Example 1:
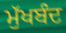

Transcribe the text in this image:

ਮੁੱਖਬੰਦ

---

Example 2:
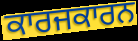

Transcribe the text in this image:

ਕਾਰਜਕਾਰਨ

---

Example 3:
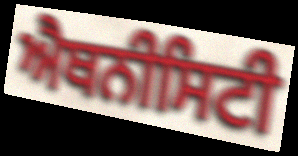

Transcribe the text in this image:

ਐਥਨੀਸਿਟੀ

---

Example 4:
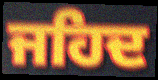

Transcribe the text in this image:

ਜਹਿਦ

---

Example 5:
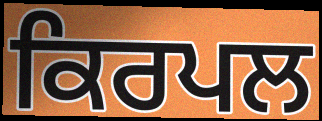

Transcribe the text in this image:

ਕਿਰਪਲ